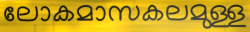
ലോകമാസകലമുള്ള